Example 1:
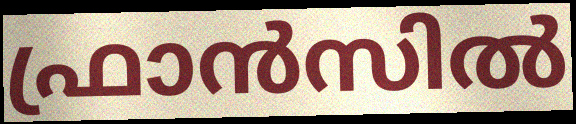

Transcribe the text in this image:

ഫ്രാൻസിൽ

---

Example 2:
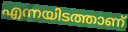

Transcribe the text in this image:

എന്നയിടത്താണ്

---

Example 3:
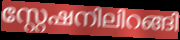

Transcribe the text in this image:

സ്റ്റേഷനിലിറങ്ങി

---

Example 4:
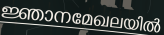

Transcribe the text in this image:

ജ്ഞാനമേഖലയിൽ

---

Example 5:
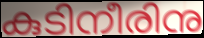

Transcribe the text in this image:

കുടിനീരിനു